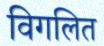
विगलित